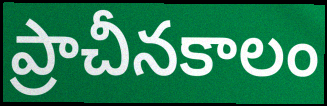
ప్రాచీనకాలం